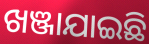
ଖଞ୍ଜାଯାଇଛି